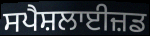
ਸਪੈਸ਼ਲਾਈਜ਼ਡ